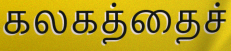
கலகத்தைச்